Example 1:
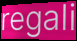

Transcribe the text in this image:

regali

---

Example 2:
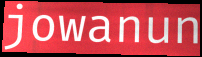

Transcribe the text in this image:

jowanun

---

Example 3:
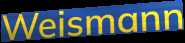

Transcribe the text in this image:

Weismann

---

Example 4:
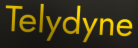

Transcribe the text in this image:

Telydyne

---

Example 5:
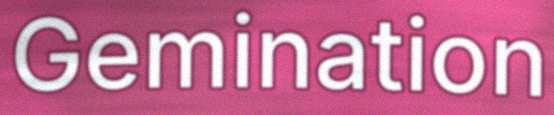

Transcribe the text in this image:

Gemination